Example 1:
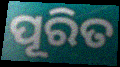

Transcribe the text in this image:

ପୂରିତ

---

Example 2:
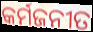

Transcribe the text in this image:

କର୍ମଜନୀତ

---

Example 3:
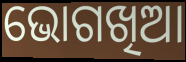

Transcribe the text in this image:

ଭୋଗଖିଆ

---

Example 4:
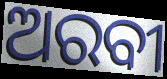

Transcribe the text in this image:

ଅରବୀ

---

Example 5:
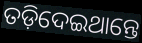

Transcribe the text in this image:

ତଡ଼ିଦେଇଥାନ୍ତେ